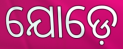
ଯୋଡ଼େ